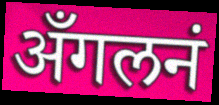
अँगलनं